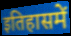
इतिहासमें